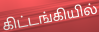
கிட்டங்கியில்